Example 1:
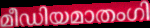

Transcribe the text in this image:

മീഡിയമാതംഗി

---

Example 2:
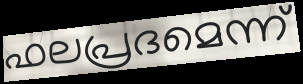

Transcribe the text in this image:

ഫലപ്രദമെന്ന്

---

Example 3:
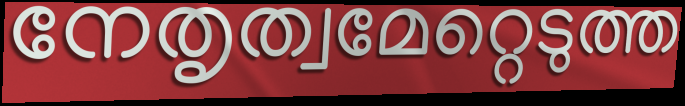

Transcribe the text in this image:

നേതൃത്വമേറ്റെടുത്ത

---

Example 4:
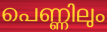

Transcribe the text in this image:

പെണ്ണിലും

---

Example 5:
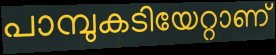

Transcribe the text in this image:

പാമ്പുകടിയേറ്റാണ്